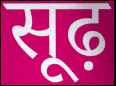
सूढ़